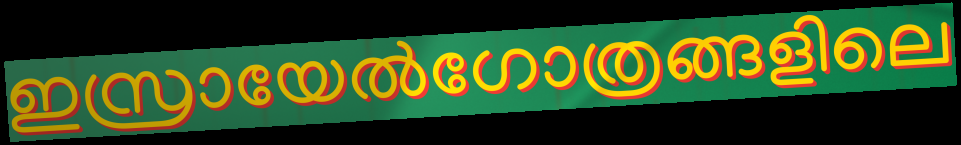
ഇസ്രായേൽഗോത്രങ്ങളിലെ